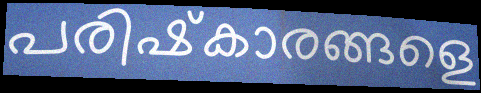
പരിഷ്‌കാരങ്ങളെ